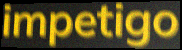
impetigo